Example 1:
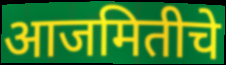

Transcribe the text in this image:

आजमितीचे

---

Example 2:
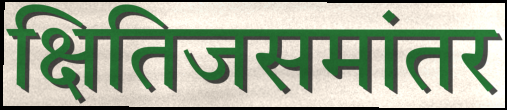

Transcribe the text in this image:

क्षितिजसमांतर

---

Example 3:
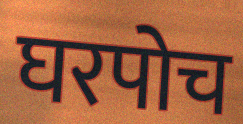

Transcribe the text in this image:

घरपोच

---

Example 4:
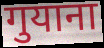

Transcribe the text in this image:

गुयाना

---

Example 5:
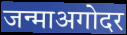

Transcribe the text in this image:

जन्माअगोदर